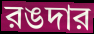
রঙদার